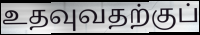
உதவுவதற்குப்